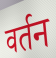
वर्तन